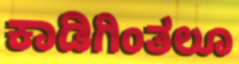
ಕಾಡಿಗಿಂತಲೂ